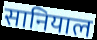
सानियाल